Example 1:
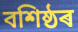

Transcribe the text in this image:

বশিষ্ঠৰ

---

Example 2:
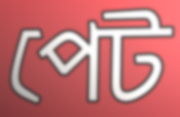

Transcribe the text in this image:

পেট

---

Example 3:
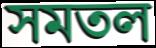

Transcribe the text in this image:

সমতল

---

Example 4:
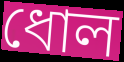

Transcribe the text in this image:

ধোল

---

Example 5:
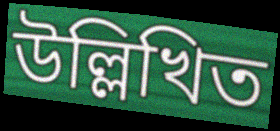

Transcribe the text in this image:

উল্লিখিত